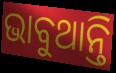
ଭାବୁଥାନ୍ତି